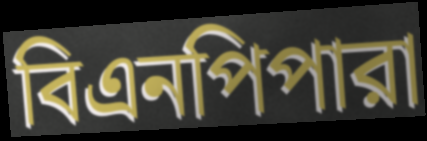
বিএনপিপারা